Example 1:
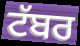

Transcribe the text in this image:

ਟੱਬਰ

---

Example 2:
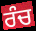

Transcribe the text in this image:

ਰੰਚ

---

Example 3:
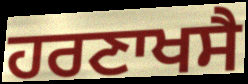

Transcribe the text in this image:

ਹਰਣਾਖਸੈ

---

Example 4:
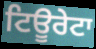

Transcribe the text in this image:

ਟਿਊਰੇਟਾ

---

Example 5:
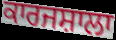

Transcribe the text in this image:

ਕਾਰਜਸ਼ਾਲਾ